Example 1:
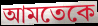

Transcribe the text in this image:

আমতেকে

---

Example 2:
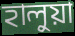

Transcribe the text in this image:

হালুয়া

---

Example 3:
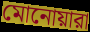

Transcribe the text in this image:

মোনোয়ারা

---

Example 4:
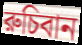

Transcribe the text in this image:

রুচিবান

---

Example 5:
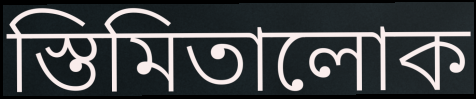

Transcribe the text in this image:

স্তিমিতালোক